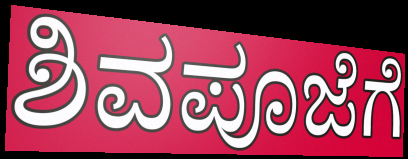
ಶಿವಪೂಜೆಗೆ